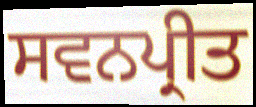
ਸਵਨਪ੍ਰੀਤ